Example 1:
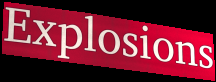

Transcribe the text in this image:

Explosions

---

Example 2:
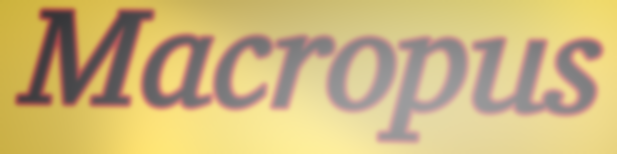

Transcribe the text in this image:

Macropus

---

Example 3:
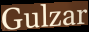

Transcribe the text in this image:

Gulzar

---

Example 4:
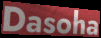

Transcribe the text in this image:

Dasoha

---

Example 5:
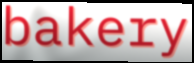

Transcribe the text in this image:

bakery